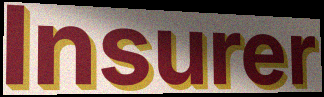
Insurer